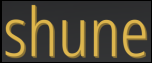
shune